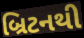
બ્રિટનથી